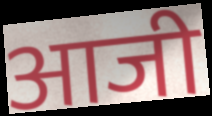
आजी